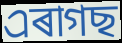
এৰাগছ